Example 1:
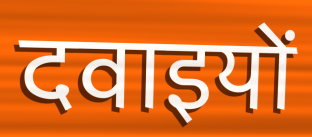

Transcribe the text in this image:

दवाइयों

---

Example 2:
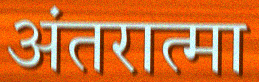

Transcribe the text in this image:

अंतरात्मा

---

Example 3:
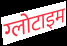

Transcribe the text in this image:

ग्लोटाइम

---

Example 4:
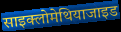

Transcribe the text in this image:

साइक्लोमेथियाजाइड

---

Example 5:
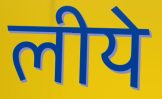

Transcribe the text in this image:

लीये